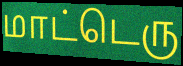
மாட்டெரு